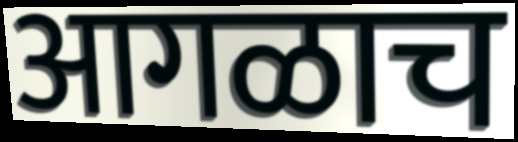
आगळाच